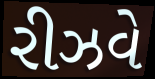
રીઝવે